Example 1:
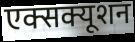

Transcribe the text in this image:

एक्सक्यूशन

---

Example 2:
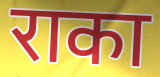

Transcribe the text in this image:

राका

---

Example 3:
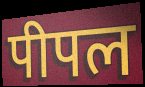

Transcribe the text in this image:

पीपल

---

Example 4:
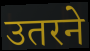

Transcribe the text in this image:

उतरने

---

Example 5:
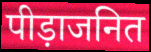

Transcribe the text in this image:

पीड़ाजनित